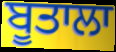
ਬੂਤਾਲਾ